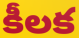
కీలక